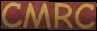
CMRC